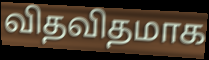
விதவிதமாக